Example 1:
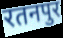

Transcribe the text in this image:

रतनपुर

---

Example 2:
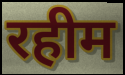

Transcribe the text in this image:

रहीम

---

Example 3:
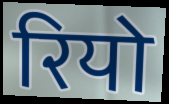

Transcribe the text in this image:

रियो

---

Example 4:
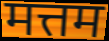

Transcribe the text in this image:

मत्तम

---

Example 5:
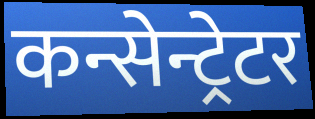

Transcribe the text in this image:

कन्सेन्ट्रेटर